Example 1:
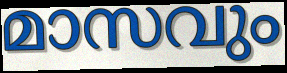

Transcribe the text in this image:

മാസവും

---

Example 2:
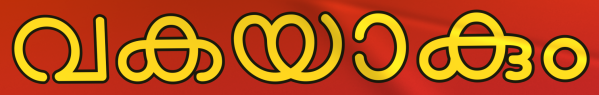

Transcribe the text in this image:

വകയാകും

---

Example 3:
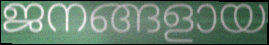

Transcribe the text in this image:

ജനങ്ങളായ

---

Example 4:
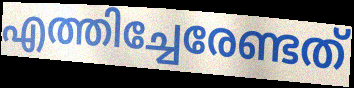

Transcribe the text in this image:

എത്തിച്ചേരേണ്ടത്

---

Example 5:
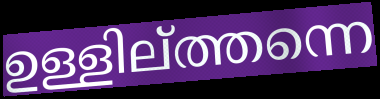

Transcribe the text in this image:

ഉള്ളില്ത്തന്നെ